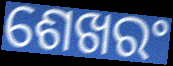
ଶେଖରଂ